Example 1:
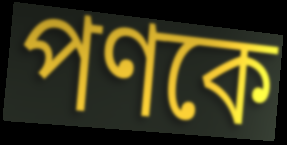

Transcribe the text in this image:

পণকে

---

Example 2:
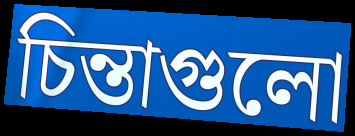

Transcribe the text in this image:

চিন্তাগুলো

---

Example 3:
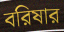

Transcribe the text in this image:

বরিষার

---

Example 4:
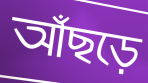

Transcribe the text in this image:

আঁছড়ে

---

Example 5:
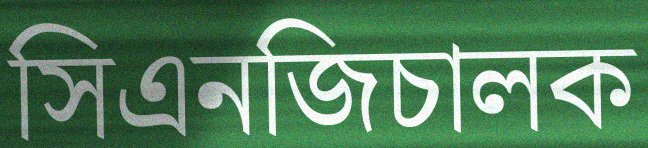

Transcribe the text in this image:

সিএনজিচালক